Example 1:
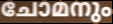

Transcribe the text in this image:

ചോമനും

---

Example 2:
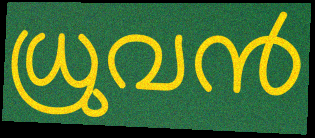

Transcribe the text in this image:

ധ്രുവൻ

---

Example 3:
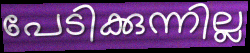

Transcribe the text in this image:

പേടിക്കുന്നില്ല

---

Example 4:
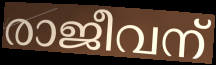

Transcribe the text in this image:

രാജീവന്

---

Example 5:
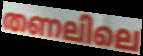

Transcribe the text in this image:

തണലിലെ